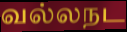
வல்லநட